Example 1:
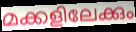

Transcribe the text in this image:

മക്കളിലേക്കും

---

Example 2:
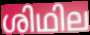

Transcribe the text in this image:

ശിഥില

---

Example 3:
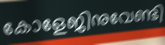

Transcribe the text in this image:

കോളേജിനുവേണ്ടി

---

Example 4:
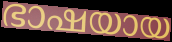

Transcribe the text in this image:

ഭാഷയായ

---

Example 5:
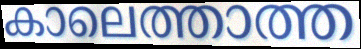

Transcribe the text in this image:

കാലെത്താത്ത